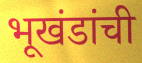
भूखंडांची